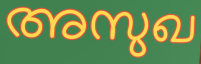
അസുഖ